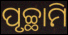
ପୃଚ୍ଛାମି